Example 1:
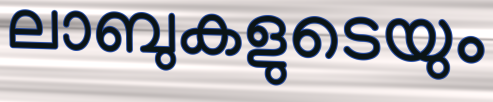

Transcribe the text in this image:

ലാബുകളുടെയും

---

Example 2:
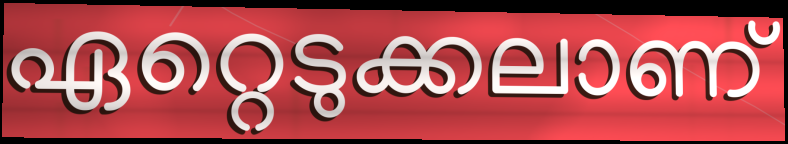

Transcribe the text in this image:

ഏറ്റെടുക്കലാണ്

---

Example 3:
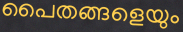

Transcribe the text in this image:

പൈതങ്ങളെയും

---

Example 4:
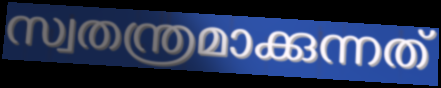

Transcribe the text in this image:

സ്വതന്ത്രമാക്കുന്നത്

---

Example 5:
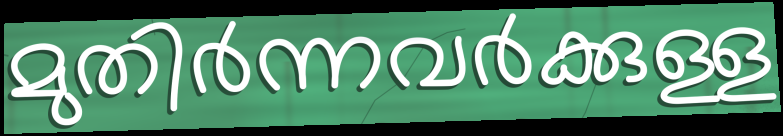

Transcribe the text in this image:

മുതിർന്നവർക്കുള്ള